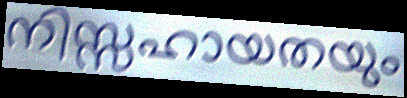
നിസ്സഹായതയും